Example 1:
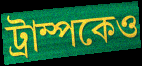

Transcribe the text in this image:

ট্রাম্পকেও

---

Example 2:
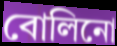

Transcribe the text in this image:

বোলিনো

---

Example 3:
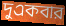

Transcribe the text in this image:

দুএকবার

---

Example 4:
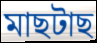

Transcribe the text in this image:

মাছটাছ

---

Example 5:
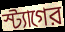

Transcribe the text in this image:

স্ট্যাগের